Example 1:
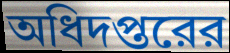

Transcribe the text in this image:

অধিদপ্তরের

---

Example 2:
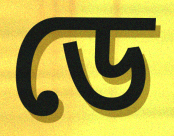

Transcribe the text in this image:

ডে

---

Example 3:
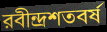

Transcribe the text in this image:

রবীন্দ্রশতবর্ষ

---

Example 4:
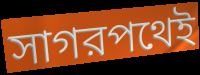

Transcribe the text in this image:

সাগরপথেই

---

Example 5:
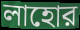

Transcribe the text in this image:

লাহোর